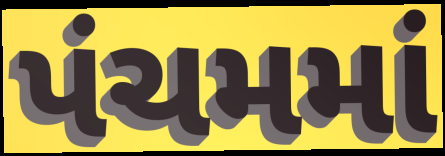
પંચમમાં